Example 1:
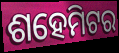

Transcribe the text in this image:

ଶହେମିଟର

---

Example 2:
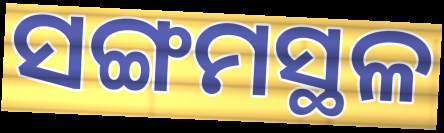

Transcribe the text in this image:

ସଙ୍ଗମସ୍ଥଳ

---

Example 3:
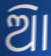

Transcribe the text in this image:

ଆି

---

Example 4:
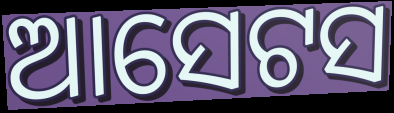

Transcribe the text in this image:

ଆସେଟସ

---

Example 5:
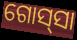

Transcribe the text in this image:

ଗୋସ୍‌ସା